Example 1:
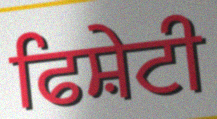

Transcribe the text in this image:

ਫਿਸ਼ੇਟੀ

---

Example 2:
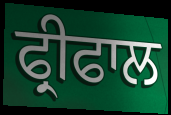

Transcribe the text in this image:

ਫ੍ਰੀਫਾਲ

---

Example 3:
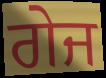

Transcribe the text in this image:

ਗੇਜ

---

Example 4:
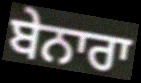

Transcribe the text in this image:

ਬੇਨਾਰਾ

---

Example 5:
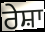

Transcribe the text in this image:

ਰੇਸ਼ਾ